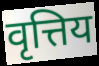
वृत्तिय